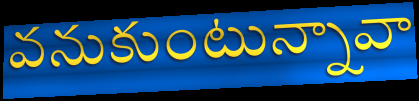
వనుకుంటున్నావా